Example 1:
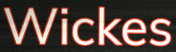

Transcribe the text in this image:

Wickes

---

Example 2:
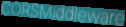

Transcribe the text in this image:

CORSMiddleware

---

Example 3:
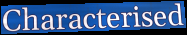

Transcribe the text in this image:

Characterised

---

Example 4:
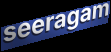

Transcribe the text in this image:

seeragam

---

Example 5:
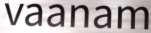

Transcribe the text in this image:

vaanam